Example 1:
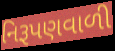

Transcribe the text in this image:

નિરૂપણવાળી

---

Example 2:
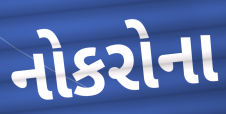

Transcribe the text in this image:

નોકરોના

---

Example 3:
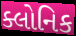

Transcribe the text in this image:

ક્લોનિક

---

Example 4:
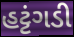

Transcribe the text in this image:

હટ્ટંગડી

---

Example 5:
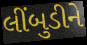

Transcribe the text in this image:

લીંબુડીને